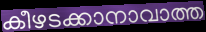
കീഴടക്കാനാവാത്ത